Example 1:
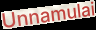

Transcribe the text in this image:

Unnamulai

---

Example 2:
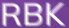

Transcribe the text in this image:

RBK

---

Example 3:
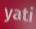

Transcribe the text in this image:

yati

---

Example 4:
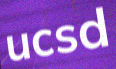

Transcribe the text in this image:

ucsd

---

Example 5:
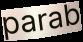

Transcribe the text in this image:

parab